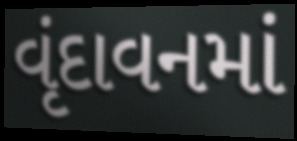
વૃંદાવનમાં